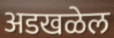
अडखळेल